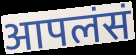
आपलंसं